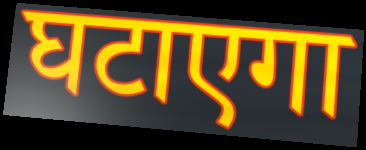
घटाएगा